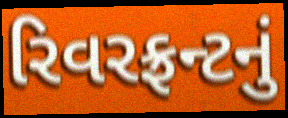
રિવરફ્રન્ટનું